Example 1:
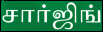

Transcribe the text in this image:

சார்ஜிங்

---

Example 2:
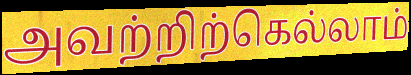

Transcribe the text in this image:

அவற்றிற்கெல்லாம்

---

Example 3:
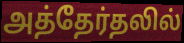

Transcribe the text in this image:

அத்தேர்தலில்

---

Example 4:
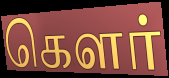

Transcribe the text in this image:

கௌர்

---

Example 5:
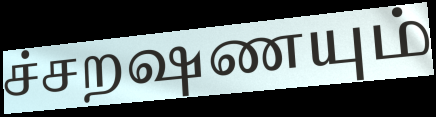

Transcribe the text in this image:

ச்சறஷணயும்